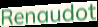
Renaudot